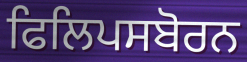
ਫਿਲਿਪਸਬੋਰਨ